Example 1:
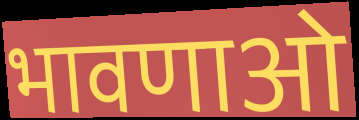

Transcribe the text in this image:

भावणाओ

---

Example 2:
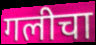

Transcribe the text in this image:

गलीचा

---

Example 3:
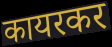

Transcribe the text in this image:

कायरकर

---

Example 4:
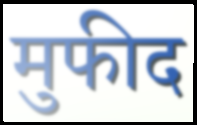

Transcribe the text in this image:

मुफीद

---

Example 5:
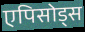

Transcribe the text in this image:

एपिसोड्स